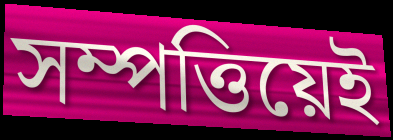
সম্পত্তিয়েই